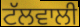
ਟੱਲਵਾਲੀ